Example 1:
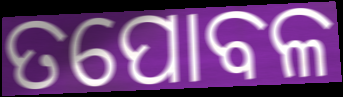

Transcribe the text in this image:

ତପୋବଳ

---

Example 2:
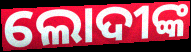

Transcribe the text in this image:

ଲୋଦୀଙ୍କ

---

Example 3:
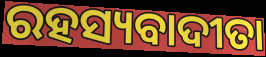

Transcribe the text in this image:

ରହସ୍ୟବାଦୀତା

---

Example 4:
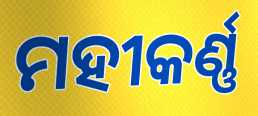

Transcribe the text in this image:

ମହୀକର୍ଣ୍ଣ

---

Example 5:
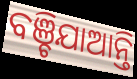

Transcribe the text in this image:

ବଞ୍ଚିଯାଆନ୍ତି